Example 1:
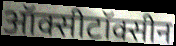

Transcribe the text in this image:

ऑक्सीटॉक्सीन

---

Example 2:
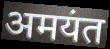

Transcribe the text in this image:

अमयंत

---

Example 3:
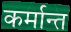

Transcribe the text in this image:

कर्मान्त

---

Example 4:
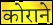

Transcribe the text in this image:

कोराने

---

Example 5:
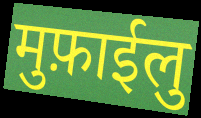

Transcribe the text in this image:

मुफ़ाईलु